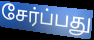
சேர்ப்பது